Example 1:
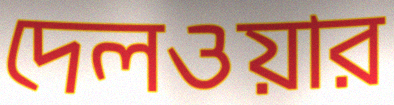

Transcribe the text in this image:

দেলওয়ার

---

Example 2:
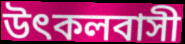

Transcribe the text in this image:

উৎকলবাসী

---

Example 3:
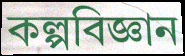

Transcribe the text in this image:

কল্পবিজ্ঞান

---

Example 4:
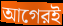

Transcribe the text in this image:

আগেরই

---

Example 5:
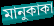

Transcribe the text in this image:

মানুকাকা